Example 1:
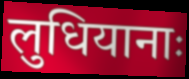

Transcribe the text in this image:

लुधियानाः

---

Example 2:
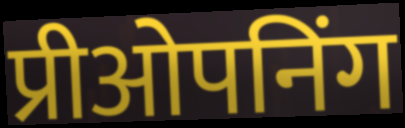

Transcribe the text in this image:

प्रीओपनिंग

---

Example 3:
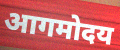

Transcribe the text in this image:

आगमोदय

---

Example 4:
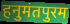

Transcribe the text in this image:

हनुमंतपुरम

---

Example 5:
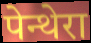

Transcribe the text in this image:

पेन्थेरा